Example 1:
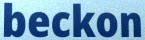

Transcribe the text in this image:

beckon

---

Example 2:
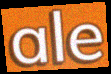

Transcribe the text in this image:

ale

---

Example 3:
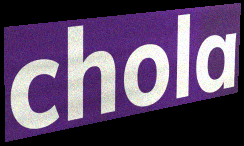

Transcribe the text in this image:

chola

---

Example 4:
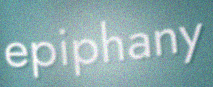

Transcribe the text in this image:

epiphany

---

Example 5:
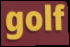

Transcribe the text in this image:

golf